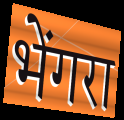
भेंगरा